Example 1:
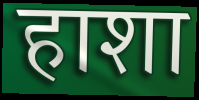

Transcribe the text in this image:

हाशा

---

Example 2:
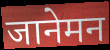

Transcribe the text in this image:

जानेमन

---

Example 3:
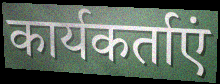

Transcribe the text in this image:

कार्यकर्ताएं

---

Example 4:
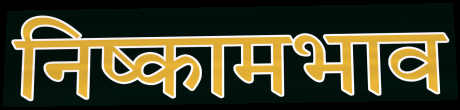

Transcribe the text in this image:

निष्कामभाव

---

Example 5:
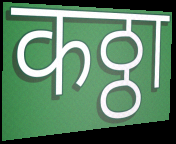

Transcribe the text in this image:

कठ्ठा